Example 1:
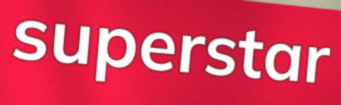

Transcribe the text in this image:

superstar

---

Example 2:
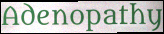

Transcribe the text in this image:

Adenopathy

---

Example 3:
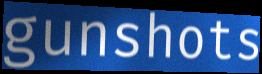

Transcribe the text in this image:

gunshots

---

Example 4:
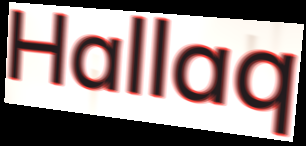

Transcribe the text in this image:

Hallaq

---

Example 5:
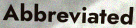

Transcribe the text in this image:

Abbreviated